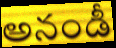
అనండీ